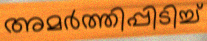
അമർത്തിപ്പിടിച്ച്